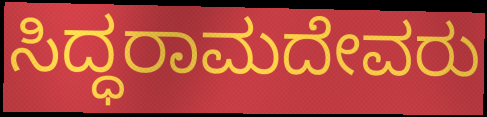
ಸಿದ್ಧರಾಮದೇವರು